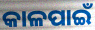
କାଳପାଇଁ